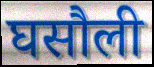
घसौली